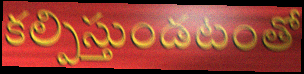
కల్పిస్తుండటంతో